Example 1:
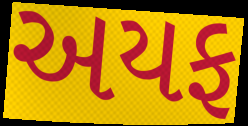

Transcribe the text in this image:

અયફ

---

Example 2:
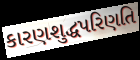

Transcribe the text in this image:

કારણશુદ્ધપરિણતિ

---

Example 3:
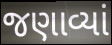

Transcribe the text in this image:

જણાવ્યાં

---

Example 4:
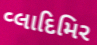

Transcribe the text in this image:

વ્લાદિમિર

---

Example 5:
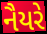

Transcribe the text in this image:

નૈયરે